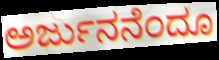
ಅರ್ಜುನನೆಂದೂ